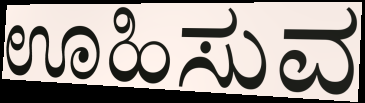
ಊಹಿಸುವ